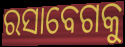
ରସାବେଗକୁ